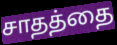
சாதத்தை